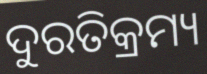
ଦୁରତିକ୍ରମ୍ୟ